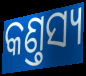
କଣ୍ତସ୍ୟ